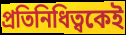
প্রতিনিধিত্বকেই